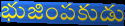
భుజింపకుడు